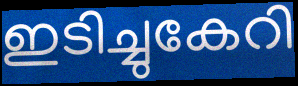
ഇടിച്ചുകേറി